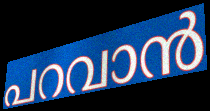
പറവാൻ